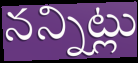
నన్నిట్లు